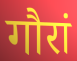
गौरां